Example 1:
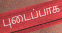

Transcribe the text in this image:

புடைப்பாக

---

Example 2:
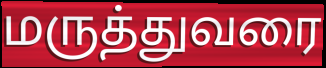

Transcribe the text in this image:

மருத்துவரை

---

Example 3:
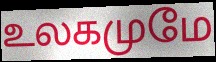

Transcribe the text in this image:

உலகமுமே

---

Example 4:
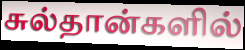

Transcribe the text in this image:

சுல்தான்களில்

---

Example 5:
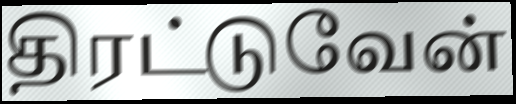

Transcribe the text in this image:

திரட்டுவேன்